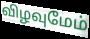
விழவுமேம்